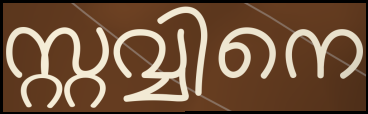
സ്റ്റവ്വിനെ